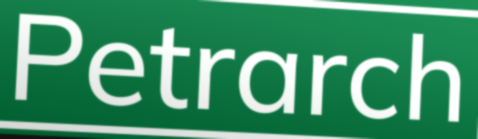
Petrarch